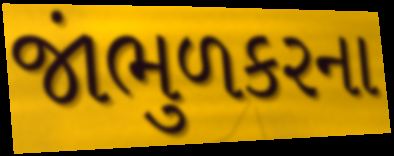
જાંભુળકરના